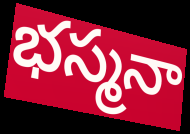
భస్మనా